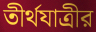
তীর্থযাত্রীর